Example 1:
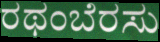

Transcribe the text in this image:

ರಥಂಬೆರಸು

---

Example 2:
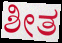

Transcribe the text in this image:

ಶೀತ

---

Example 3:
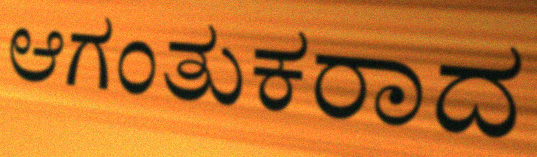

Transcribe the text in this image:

ಆಗಂತುಕರಾದ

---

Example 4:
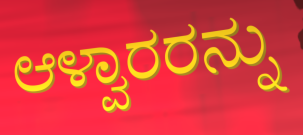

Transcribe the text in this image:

ಆಳ್ವಾರರನ್ನು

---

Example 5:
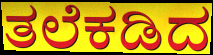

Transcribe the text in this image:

ತಲೆಕಡಿದ